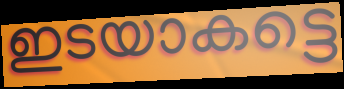
ഇടയാകട്ടെ